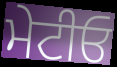
ਮੇਟੀਓ